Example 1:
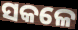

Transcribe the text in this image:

ସକଳେ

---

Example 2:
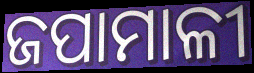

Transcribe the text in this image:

ଜପାମାଳୀ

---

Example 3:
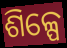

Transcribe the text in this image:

ଶିଳ୍ପେ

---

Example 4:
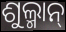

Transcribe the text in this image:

ଶୁଲ୍ମାନ୍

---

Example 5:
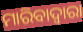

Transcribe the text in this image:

ମାରିବାଦ୍ୱାରା